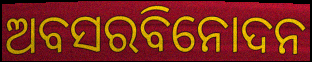
ଅବସରବିନୋଦନ